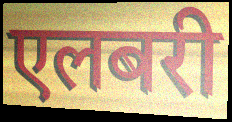
एलबरी